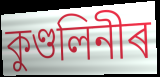
কুণ্ডলিনীৰ